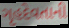
ગૃહદેવતાની